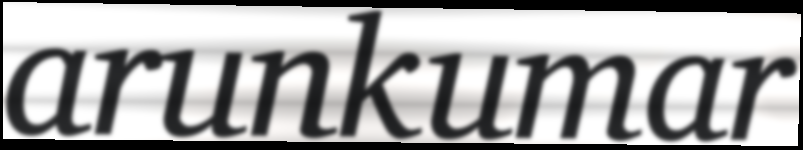
arunkumar